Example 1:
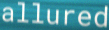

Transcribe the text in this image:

allured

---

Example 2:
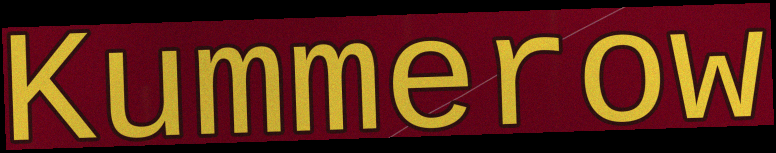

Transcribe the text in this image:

Kummerow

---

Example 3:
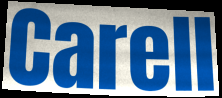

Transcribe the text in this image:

Carell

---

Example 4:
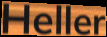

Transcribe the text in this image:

Heller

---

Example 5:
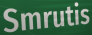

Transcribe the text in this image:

Smrutis